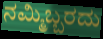
ನಮ್ಮಿಬ್ಬರದು